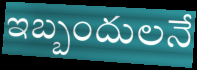
ఇబ్బందులనే